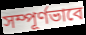
সম্পূৰ্ণভাবে